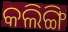
କଲିଙ୍ଗି